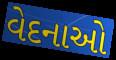
વેદનાઓ